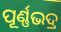
ପୂର୍ଣ୍ଣଭଦ୍ର